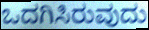
ಒದಗಿಸಿರುವುದು